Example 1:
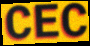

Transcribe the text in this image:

CEC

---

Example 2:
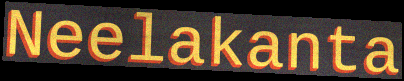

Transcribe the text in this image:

Neelakanta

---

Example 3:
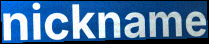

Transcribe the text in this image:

nickname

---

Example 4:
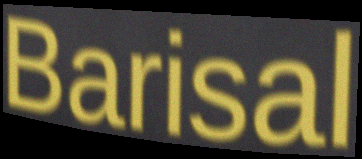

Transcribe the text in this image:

Barisal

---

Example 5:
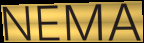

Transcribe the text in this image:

NEMA